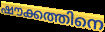
ഷൗക്കത്തിനെ